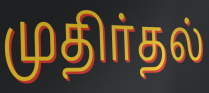
முதிர்தல்